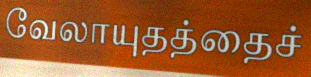
வேலாயுதத்தைச்